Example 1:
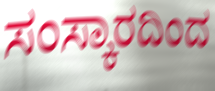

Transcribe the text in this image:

ಸಂಸ್ಕಾರದಿಂದ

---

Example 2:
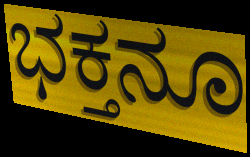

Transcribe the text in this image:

ಭಕ್ತನೂ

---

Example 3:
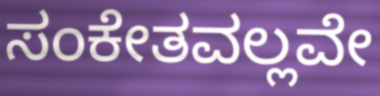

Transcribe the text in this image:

ಸಂಕೇತವಲ್ಲವೇ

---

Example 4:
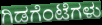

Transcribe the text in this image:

ಗಿಡಗೆಂಟೆಗಳು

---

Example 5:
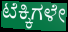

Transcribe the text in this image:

ಟೆಕ್ಕಿಗಳೇ